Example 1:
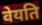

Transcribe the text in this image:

वेयति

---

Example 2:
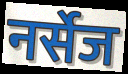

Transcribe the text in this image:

नर्सेज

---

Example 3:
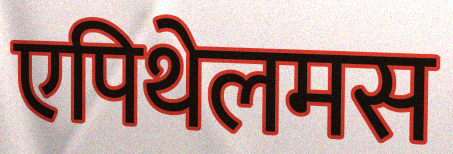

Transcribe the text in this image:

एपिथेलमस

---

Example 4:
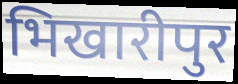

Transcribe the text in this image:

भिखारीपुर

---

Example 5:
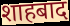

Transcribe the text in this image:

शाहबाद